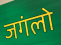
जगंलो